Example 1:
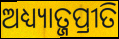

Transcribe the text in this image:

ଅଧ୍ୟ୍ୟାତ୍ଜପ୍ରୀତି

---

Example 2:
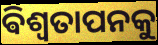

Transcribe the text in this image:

ଵିଶ୍ଵତାପନକୁ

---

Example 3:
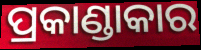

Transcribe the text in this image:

ପ୍ରକାଣ୍ଡାକାର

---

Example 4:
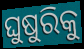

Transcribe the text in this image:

ଘୁଷୁରିକୁ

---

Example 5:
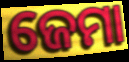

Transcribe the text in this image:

ଜେମା